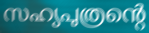
സഹ്യപുത്രന്റെ